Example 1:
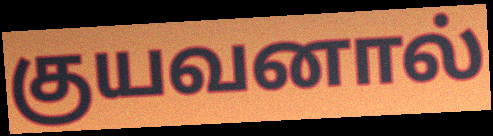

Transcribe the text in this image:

குயவனால்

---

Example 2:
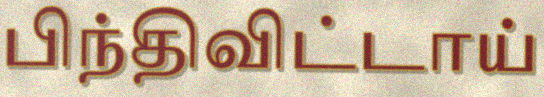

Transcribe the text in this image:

பிந்திவிட்டாய்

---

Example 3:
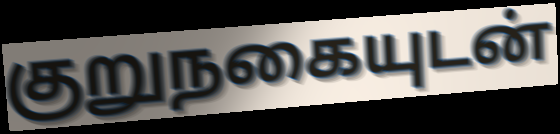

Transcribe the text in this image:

குறுநகையுடன்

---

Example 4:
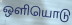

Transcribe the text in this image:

ஒளியொடு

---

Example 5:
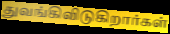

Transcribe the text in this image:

துவங்கிவிடுகிறார்கள்